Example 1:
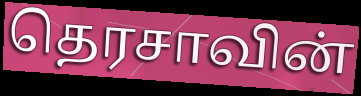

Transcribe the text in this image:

தெரசாவின்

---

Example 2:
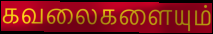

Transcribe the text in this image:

கவலைகளையும்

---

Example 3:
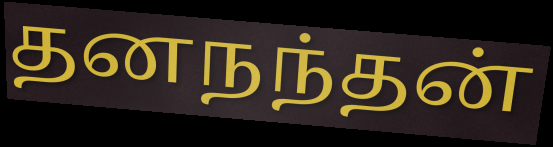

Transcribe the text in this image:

தனநந்தன்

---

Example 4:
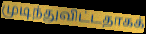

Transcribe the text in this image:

முடிந்துவிட்டதாகக்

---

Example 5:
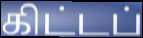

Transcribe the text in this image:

கிட்டப்